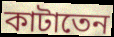
কাটাতেন